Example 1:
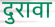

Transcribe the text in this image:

दुरावा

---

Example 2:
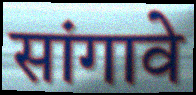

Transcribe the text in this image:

सांगावे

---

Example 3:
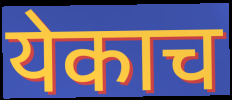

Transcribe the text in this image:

येकाच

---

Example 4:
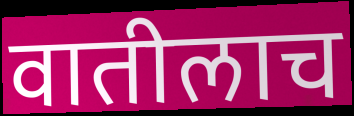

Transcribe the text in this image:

वातीलाच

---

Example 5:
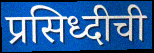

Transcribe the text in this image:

प्रसिध्दीची